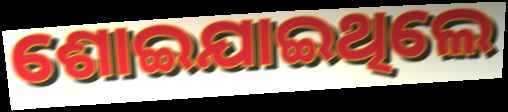
ଶୋଇଯାଇଥିଲେ